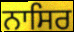
ਨਾਸਿਰ